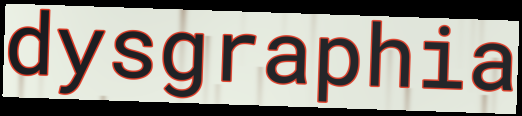
dysgraphia